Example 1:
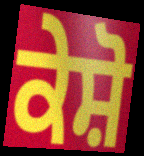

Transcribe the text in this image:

ਕੇਸ਼ੋ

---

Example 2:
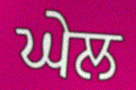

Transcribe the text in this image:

ਘੇਲ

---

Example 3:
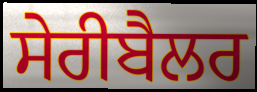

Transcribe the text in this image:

ਸੇਰੀਬੈਲਰ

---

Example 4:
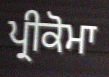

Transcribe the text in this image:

ਪ੍ਰੀਕੋਮਾ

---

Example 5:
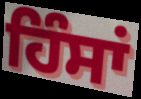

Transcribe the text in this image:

ਹਿੰਸਾਂ